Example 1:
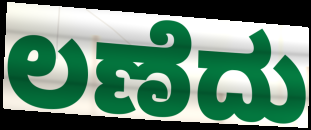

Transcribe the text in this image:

ಲಣೆದು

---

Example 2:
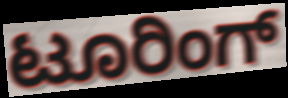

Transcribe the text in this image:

ಟೂರಿಂಗ್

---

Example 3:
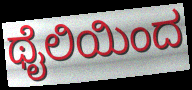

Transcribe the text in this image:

ಥೈಲಿಯಿಂದ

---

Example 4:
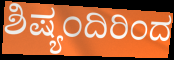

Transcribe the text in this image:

ಶಿಷ್ಯಂದಿರಿಂದ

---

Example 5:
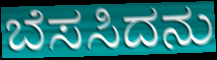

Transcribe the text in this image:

ಬೆಸಸಿದನು